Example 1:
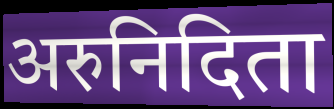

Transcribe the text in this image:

अरुनिदिता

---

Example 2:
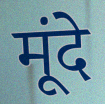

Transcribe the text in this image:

मूंदे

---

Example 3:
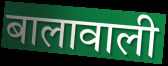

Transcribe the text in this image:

बालावाली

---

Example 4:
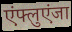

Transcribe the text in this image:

एंफ्लुएंजा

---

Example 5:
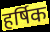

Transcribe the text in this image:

हर्षिक